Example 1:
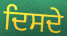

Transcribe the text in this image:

ਦਿਸਦੇ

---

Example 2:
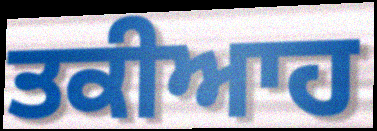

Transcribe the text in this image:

ਤਕੀਆਹ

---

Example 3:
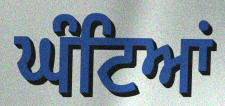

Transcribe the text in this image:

ਘੰਟਿਆਂ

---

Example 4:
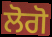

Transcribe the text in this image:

ਲੋਗੋ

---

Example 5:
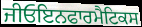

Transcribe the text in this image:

ਜੀਓਇਨਫਾਰਮੈਟਿਕਸ